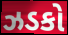
ઝડકો